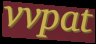
vvpat